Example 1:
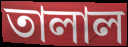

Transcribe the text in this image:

তালাল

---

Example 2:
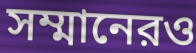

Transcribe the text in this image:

সম্মানেরও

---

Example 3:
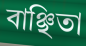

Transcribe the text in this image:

বাঞ্ছিতা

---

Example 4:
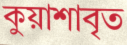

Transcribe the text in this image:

কুয়াশাবৃত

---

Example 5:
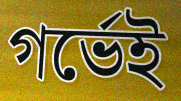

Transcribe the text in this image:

গর্ভেই